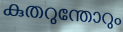
കുതറുന്തോറും